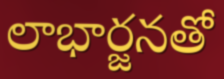
లాభార్జనతో